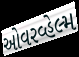
ઓવરવ્હેલ્મ